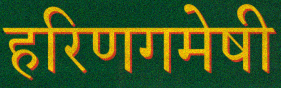
हरिणगमेषी